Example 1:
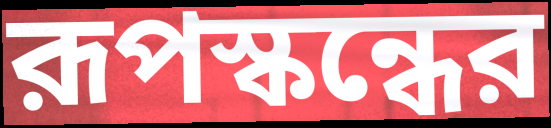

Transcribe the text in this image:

রূপস্কন্ধের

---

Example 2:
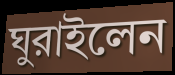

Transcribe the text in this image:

ঘুরাইলেন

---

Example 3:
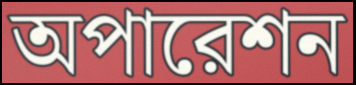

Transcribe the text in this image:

অপারেশন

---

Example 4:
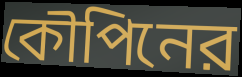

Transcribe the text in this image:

কৌপিনের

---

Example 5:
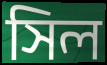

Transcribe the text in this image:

সিল